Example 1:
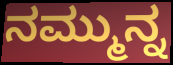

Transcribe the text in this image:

ನಮ್ಮುನ್ನ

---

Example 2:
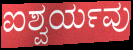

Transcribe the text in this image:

ಐಶ್ವರ್ಯವು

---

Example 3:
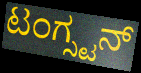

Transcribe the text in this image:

ಟಂಗ್ಸ್ಟನ್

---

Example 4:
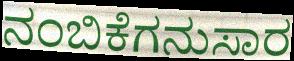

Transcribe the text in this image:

ನಂಬಿಕೆಗನುಸಾರ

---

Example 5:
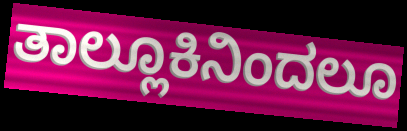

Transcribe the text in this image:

ತಾಲ್ಲೂಕಿನಿಂದಲೂ